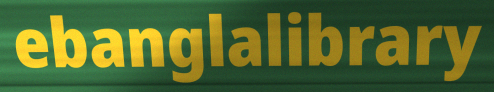
ebanglalibrary